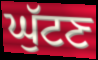
ਘੁੱਟਣ